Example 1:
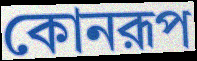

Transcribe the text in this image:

কোনরূপ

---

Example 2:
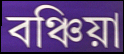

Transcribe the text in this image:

বঞ্চিয়া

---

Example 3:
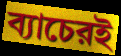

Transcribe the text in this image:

ব্যাচেরই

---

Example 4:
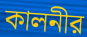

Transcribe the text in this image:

কালনীর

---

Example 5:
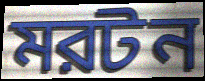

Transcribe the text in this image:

মরটন